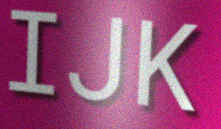
IJK